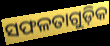
ସଫଳତାଗୁଡ଼ିକ